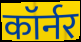
कॉर्नर